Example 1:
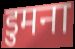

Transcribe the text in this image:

डुमना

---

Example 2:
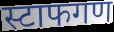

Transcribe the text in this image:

स्टाफगण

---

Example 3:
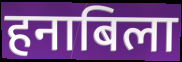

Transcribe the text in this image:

हनाबिला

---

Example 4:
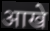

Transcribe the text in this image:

आखे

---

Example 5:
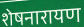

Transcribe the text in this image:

शेषनारायण